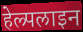
हेल्पलाइन